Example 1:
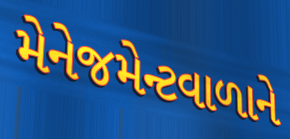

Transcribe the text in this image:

મેનેજમેન્ટવાળાને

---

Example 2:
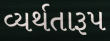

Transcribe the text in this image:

વ્યર્થતારૂપ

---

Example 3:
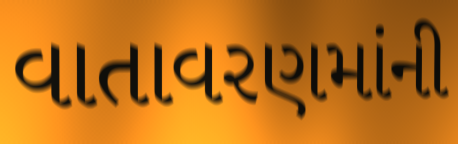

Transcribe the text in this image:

વાતાવરણમાંની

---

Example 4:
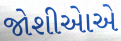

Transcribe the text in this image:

જોશીએાએ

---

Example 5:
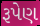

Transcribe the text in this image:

રૂપેણ